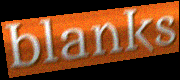
blanks